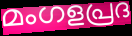
മംഗളപ്രദ